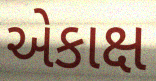
એકાક્ષ